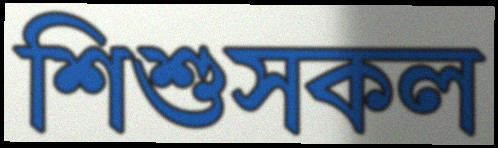
শিশুসকল